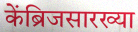
केंब्रिजसारख्या